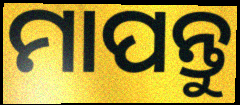
ମାପନ୍ତୁ